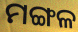
ମଙ୍ଗଳ